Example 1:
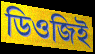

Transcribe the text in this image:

ডিওজিই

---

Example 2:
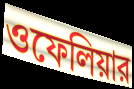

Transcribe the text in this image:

ওফেলিয়ার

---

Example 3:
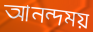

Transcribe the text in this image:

আনন্দময়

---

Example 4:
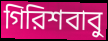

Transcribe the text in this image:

গিরিশবাবু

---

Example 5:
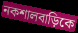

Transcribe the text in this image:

নকশালবাড়িকে